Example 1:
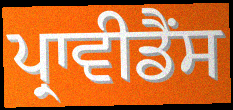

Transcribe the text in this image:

ਪ੍ਰਾਵੀਡੈਂਸ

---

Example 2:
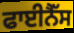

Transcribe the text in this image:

ਫਾਈਨੈੱਸ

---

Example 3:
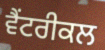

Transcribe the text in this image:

ਵੈਂਟਰੀਕਲ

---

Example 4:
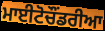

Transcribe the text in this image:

ਮਾਈਟੋਚੌਂਡਰੀਆ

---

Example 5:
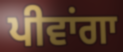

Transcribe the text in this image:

ਪੀਵਾਂਗਾ